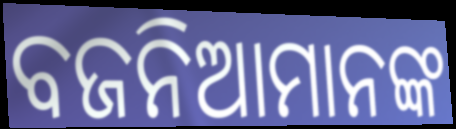
ବଜନିଆମାନଙ୍କ